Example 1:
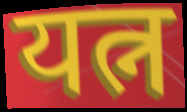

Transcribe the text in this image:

यत्न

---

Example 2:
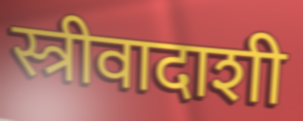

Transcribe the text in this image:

स्त्रीवादाशी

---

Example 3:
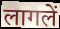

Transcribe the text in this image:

लागलें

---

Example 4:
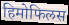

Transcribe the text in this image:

हिमोफिलस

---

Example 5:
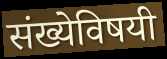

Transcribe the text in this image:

संख्येविषयी